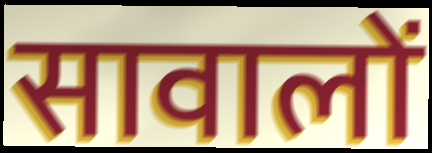
सावालों